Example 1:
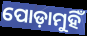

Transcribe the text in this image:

ପୋଡ଼ାମୁହିଁ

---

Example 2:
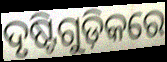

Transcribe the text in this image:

ଦୃଷ୍ଟିଗୁଡ଼ିକରେ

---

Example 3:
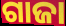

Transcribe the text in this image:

ଗାଜା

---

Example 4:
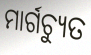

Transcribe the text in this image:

ମାର୍ଗଚ୍ୟୁତ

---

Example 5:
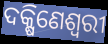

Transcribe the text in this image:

ଦକ୍ଷିଣେଶ୍ଵରୀ